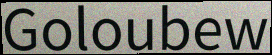
Goloubew